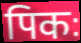
पिकः